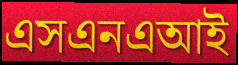
এসএনএআই